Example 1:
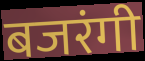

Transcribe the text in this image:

बजरंगी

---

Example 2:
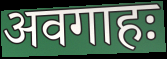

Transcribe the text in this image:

अवगाहः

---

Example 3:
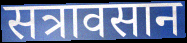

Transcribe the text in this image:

सत्रावसान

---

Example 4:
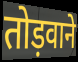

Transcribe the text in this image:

तोड़वाने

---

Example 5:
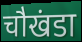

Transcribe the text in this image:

चौखंडा